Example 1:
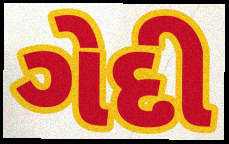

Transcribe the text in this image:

ગેદી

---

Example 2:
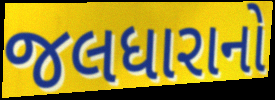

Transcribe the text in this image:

જલધારાનો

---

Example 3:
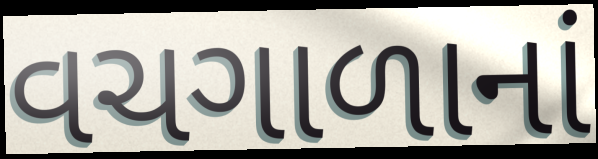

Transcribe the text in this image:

વચગાળાનાં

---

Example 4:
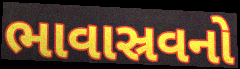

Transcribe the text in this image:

ભાવાસ્રવનો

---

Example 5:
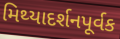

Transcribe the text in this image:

મિથ્યાદર્શનપૂર્વક